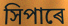
সিপাৰে